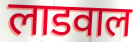
लाडवाल